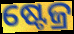
ଷ୍ଟେଜ୍ର